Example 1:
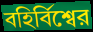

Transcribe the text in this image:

বহির্বিশ্বের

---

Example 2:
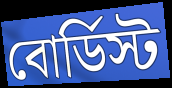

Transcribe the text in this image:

বোর্ডিস্ট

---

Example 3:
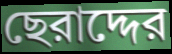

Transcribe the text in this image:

ছেরাদ্দের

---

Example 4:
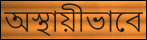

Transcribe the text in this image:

অস্থায়ীভাবে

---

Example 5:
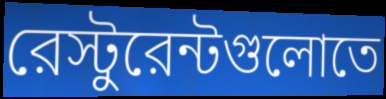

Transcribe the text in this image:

রেস্টুরেন্টগুলোতে